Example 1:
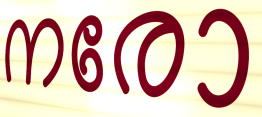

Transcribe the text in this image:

നരോ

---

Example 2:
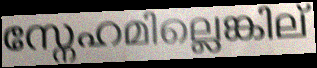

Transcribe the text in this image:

സ്നേഹമില്ലെങ്കില്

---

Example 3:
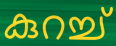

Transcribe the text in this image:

കുറച്ച്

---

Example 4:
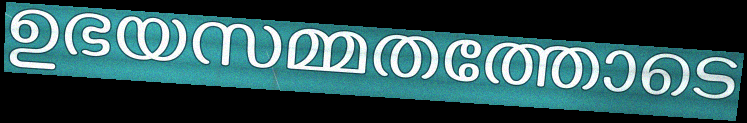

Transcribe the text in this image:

ഉഭയസമ്മതത്തോടെ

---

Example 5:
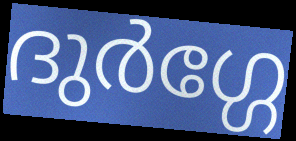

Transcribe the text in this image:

ദുർഗ്ഗേ